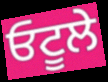
ਓਟੂਲੇ